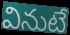
వినుటే